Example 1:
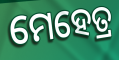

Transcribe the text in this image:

ମେହେତ୍ର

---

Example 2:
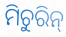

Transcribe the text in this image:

ମିଚୁରିନ୍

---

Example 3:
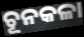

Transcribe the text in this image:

ଚୂନକଳା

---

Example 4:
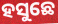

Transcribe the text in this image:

ହସୁଛେ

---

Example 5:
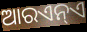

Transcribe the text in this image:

ଆରଏନ୍ଏ